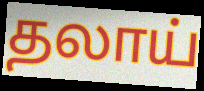
தலாய்